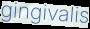
gingivalis